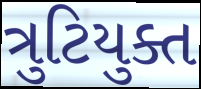
ત્રુટિયુક્ત